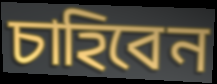
চাহিবেন